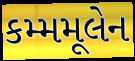
કમ્મમૂલેન